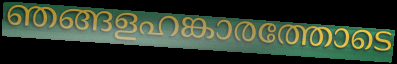
ഞങ്ങളഹങ്കാരത്തോടെ